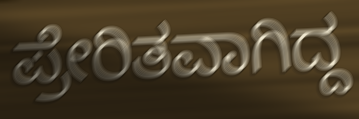
ಪ್ರೇರಿತವಾಗಿದ್ದ